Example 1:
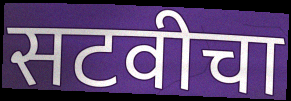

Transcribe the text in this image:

सटवीचा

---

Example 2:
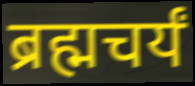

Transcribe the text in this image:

ब्रह्मचर्यं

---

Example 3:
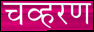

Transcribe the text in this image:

चव्हरण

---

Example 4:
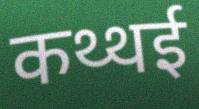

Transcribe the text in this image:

कथ्थई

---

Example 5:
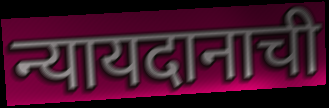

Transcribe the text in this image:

न्यायदानाची